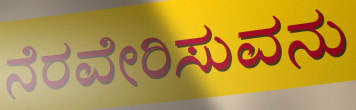
ನೆರವೇರಿಸುವನು